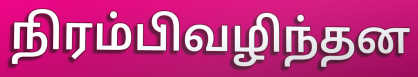
நிரம்பிவழிந்தன